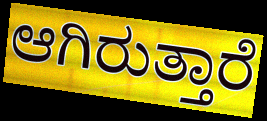
ಆಗಿರುತ್ತಾರೆ